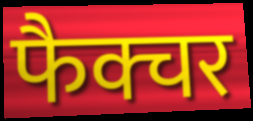
फैक्चर